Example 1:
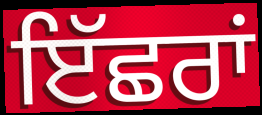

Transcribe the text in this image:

ਇੱਛਰਾਂ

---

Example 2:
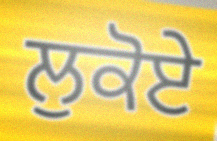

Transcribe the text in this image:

ਲੁਕੋਏ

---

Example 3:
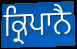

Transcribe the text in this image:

ਕ੍ਰਿਪਾਨੈ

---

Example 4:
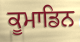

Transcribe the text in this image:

ਕੂਮਾਡਿਨ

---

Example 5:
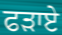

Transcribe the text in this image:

ਫੜਾਏ